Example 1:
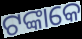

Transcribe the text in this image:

ଟଙ୍କାକେ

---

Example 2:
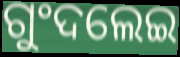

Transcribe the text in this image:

ଗୁଂଦଲେଇ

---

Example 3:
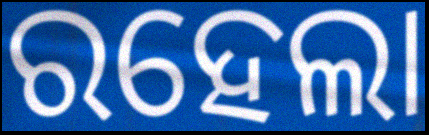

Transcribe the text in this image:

ରହେଲା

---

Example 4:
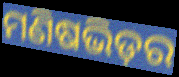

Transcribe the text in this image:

ମଣିଷଭିଡ଼ର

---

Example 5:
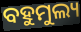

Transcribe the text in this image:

ବହୁମୁଲ୍ୟ